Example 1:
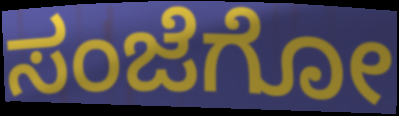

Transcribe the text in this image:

ಸಂಜೆಗೋ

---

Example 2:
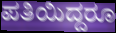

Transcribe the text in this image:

ಪತಿಯಿದ್ದರೂ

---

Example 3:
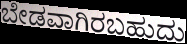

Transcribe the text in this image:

ಬೇಡವಾಗಿರಬಹುದು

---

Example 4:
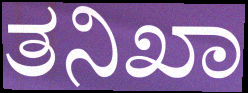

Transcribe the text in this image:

ತನಿಖಾ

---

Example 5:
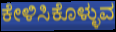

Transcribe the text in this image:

ಕೇಳಿಸಿಕೊಳ್ಳುವ